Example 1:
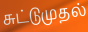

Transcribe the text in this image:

சுட்டுமுதல்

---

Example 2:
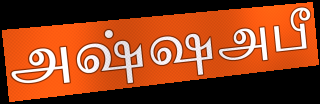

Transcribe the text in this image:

அஷ்ஷஅபீ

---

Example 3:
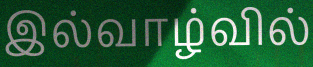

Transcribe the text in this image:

இல்வாழ்வில்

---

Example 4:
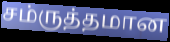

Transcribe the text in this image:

சம்ருத்தமான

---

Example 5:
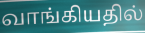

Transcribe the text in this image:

வாங்கியதில்